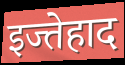
इज्तेहाद